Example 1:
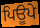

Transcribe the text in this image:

ਪਿਊਪੇ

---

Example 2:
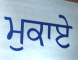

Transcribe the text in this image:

ਮੁਕਾਏ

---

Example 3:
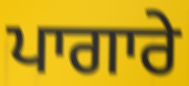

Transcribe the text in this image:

ਪਾਗਾਰੇ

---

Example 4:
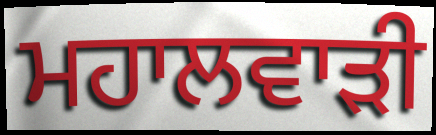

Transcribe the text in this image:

ਮਹਾਲਵਾੜੀ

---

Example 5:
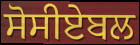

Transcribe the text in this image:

ਸੋਸੀਏਬਲ